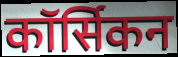
कॉर्सिकन